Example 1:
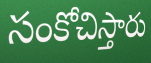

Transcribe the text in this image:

సంకోచిస్తారు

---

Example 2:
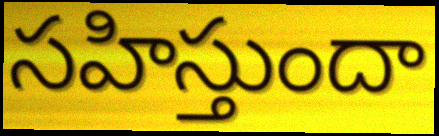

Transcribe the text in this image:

సహిస్తుందా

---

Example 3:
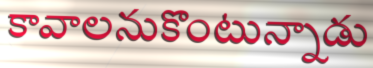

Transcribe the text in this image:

కావాలనుకొంటున్నాడు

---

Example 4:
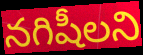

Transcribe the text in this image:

నగిషీలని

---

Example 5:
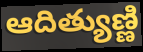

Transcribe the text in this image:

ఆదిత్యుణ్ణి